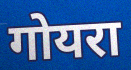
गोयरा